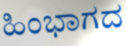
ಹಿಂಭಾಗದ